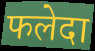
फलेदा